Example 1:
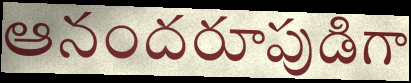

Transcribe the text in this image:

ఆనందరూపుడిగా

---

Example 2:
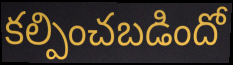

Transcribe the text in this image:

కల్పించబడిందో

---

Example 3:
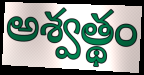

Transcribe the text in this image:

అశ్వత్థం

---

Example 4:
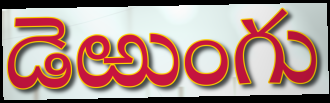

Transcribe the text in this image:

డెఱుంగు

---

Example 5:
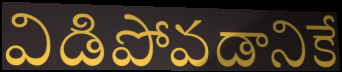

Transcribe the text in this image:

విడిపోవడానికే